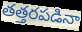
తత్తరపడినా